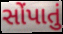
સોંપાતું